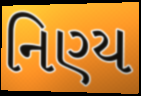
નિણ્ય